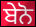
ਬੇਨੋ